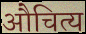
औचित्‍य